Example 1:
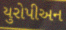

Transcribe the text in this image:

યુરોપીઅન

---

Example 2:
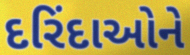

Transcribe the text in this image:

દરિંદાઓને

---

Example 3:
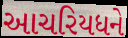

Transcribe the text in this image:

આચરિયધને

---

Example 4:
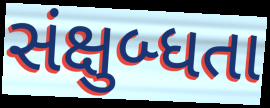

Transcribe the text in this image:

સંક્ષુબ્ધતા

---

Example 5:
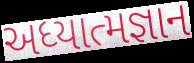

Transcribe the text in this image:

અધ્યાત્મજ્ઞાન